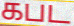
கபட